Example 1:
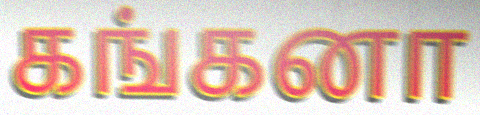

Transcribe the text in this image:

கங்கனா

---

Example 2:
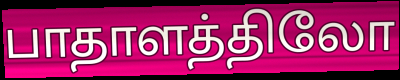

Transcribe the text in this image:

பாதாளத்திலோ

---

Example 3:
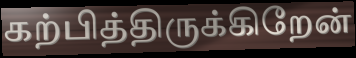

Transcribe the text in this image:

கற்பித்திருக்கிறேன்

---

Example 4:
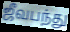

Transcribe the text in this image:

ஜீவபந்து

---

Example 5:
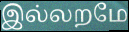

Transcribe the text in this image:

இல்லறமே